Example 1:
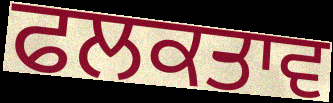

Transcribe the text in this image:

ਫਲਕਤਾਵ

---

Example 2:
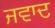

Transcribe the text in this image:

ਜਵਾਦ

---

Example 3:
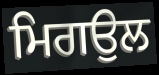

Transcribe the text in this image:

ਮਿਗਉਲ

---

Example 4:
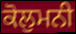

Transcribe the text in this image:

ਕੋਲੁਮਨੀ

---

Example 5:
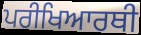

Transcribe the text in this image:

ਪਰੀਖਿਆਰਥੀ